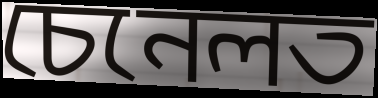
চেনেলত